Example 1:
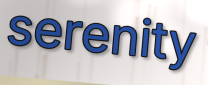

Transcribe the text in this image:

serenity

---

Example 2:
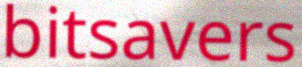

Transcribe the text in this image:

bitsavers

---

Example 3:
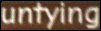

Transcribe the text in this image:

untying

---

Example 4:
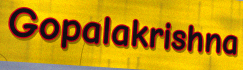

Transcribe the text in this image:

Gopalakrishna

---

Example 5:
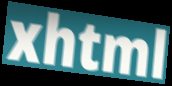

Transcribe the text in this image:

xhtml